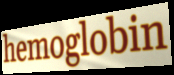
hemoglobin